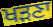
ਖੜਣਾ